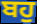
ਬਹੁ